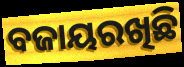
ବଜାୟରଖିଛି